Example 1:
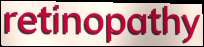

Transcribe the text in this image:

retinopathy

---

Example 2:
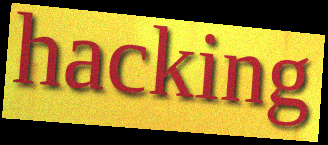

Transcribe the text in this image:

hacking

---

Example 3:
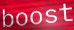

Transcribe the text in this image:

boost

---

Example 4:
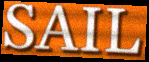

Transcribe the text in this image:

SAIL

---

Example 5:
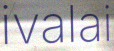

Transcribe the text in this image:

ivalai